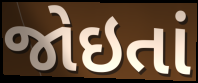
જોઇતાં